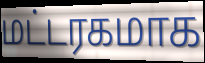
மட்டரகமாக